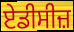
ਏਡੀਸੀਜ਼